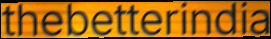
thebetterindia